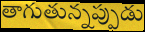
తాగుతున్నప్పుడు